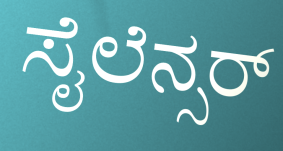
ಸೈಲೆನ್ಸರ್